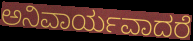
ಅನಿವಾರ್ಯವಾದರೆ